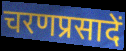
चरणप्रसादें